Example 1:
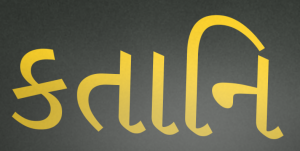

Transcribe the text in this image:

કતાનિ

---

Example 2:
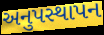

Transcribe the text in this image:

અનુપસ્થાપન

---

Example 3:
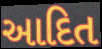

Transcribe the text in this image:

આદિત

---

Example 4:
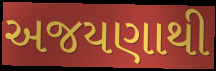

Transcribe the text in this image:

અજયણાથી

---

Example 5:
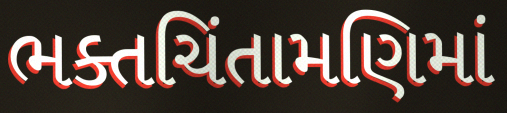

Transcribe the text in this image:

ભક્તચિંતામણિમાં